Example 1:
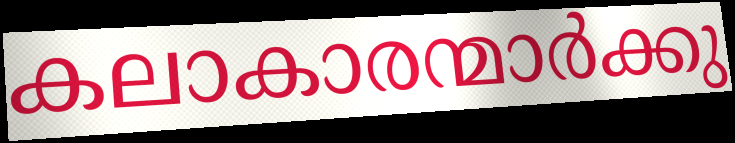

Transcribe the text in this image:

കലാകാരന്മാർക്കു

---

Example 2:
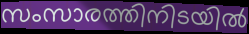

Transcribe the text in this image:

സംസാരത്തിനിടയിൽ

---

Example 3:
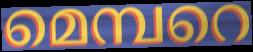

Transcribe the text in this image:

മെമ്പറെ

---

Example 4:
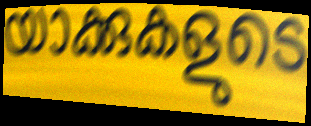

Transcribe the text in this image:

യാക്കുകളുടെ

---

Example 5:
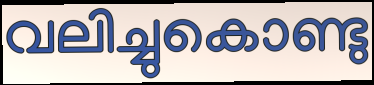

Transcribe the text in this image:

വലിച്ചുകൊണ്ടു